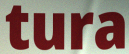
tura